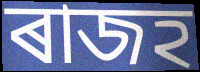
ৰাজহ